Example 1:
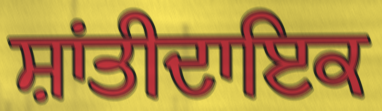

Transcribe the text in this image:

ਸ਼ਾਂਤੀਦਾਇਕ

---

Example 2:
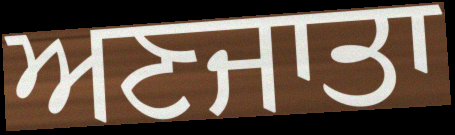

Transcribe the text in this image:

ਅਣਜਾਤਾ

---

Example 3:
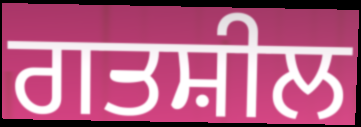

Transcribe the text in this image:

ਗਤਸ਼ੀਲ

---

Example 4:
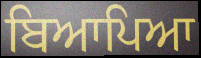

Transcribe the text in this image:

ਬਿਆਪਿਆ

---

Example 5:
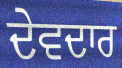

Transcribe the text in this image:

ਦੇਵਦਾਰ